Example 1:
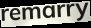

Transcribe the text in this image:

remarry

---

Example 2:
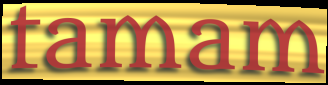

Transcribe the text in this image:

tamam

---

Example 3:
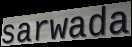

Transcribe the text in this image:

sarwada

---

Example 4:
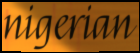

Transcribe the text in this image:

nigerian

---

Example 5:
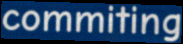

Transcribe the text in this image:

commiting